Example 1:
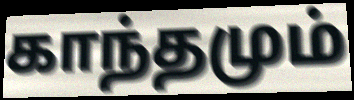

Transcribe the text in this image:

காந்தமும்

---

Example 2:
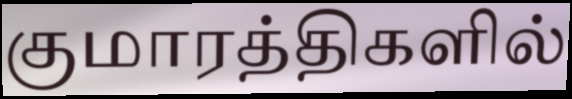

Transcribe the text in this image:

குமாரத்திகளில்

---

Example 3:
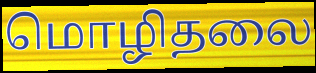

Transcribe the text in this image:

மொழிதலை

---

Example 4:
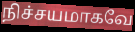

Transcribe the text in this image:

நிச்சயமாகவே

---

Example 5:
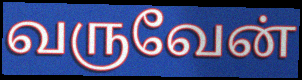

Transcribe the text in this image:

வருவேன்